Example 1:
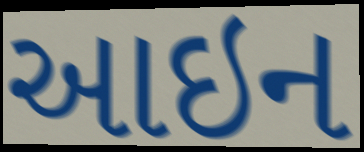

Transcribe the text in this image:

આઇન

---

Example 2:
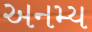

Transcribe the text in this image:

અનમ્ય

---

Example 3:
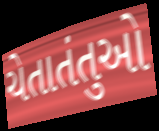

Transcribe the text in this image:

ચેતાતંતુઓ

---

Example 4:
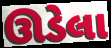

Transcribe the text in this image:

ઊડેલા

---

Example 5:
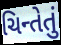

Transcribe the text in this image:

ચિન્તેતું